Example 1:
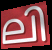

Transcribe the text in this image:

ലി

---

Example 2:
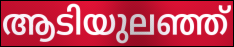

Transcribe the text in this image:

ആടിയുലഞ്ഞ്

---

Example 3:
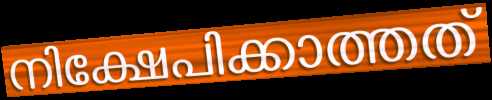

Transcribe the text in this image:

നിക്ഷേപിക്കാത്തത്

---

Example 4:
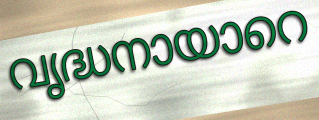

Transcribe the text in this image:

വൃദ്ധനായാറെ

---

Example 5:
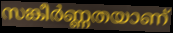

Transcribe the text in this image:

സങ്കീർണ്ണതയാണ്